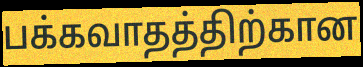
பக்கவாதத்திற்கான